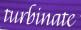
turbinate